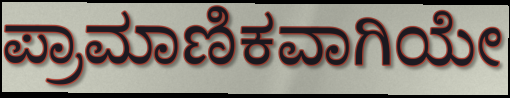
ಪ್ರಾಮಾಣಿಕವಾಗಿಯೇ